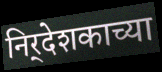
निर्देशकाच्या